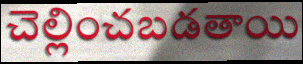
చెల్లించబడతాయి